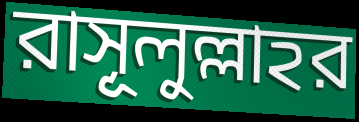
রাসূলুল্লাহর